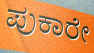
ಪುಕಾರೇ